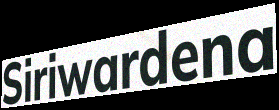
Siriwardena